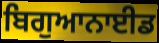
ਬਿਗੁਆਨਾਈਡ